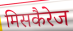
मिसकैरेज